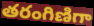
తరంగిణిగా